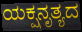
ಯಕ್ಷನೃತ್ಯದ